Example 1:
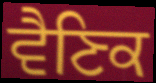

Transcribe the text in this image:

ਵੈਣਿਕ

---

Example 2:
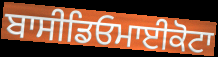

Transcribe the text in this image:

ਬਾਸੀਡਿਓਮਾਈਕੋਟਾ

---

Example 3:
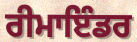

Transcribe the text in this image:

ਰੀਮਾਇੰਡਰ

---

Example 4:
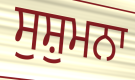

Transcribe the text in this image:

ਸੁਸ਼ੁਮਨਾ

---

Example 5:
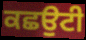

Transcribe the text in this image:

ਕਛਉਟੀ